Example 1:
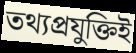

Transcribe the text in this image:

তথ্যপ্রযুক্তিই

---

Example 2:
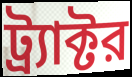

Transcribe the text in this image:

ট্র্যাক্টর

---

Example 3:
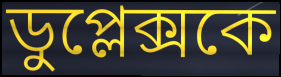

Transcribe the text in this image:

ডুপ্লেক্সকে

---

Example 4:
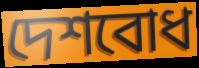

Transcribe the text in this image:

দেশবোধ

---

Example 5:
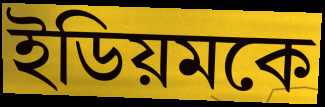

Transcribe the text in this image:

ইডিয়মকে